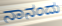
ನಾನಂದು